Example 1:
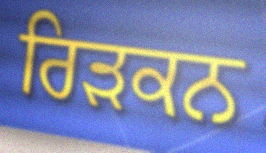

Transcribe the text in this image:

ਰਿੜਕਨ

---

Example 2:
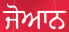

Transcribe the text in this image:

ਜੋਆਨ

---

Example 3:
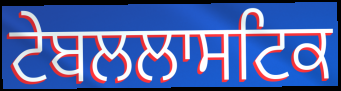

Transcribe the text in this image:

ਟੇਬਲਲਾਸਟਿਕ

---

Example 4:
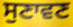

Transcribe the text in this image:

ਸੁਣਾਵਣ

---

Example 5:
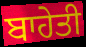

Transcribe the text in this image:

ਬਾਹੇਤੀ